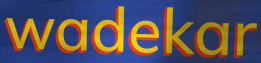
wadekar